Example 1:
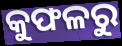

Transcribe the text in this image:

କୁଫଳରୁ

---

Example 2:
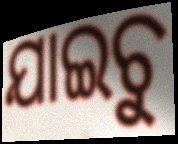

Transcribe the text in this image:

ଯାଇଚୁ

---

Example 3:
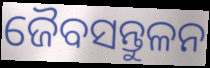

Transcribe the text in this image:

ଜୈବସନ୍ତୁଳନ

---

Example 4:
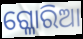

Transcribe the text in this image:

ଗ୍ଳୋରିଆ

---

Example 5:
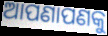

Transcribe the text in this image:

ଆପଣାପଣକୁ